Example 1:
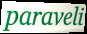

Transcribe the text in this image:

paraveli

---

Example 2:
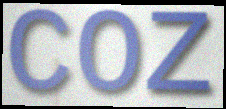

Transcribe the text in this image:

COZ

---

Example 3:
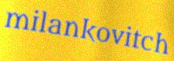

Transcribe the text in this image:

milankovitch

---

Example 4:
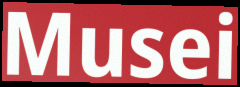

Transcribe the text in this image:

Musei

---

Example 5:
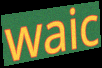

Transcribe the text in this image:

waic